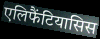
एलिफैंटियासिस